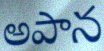
అపాన